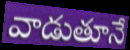
వాడుతూనే